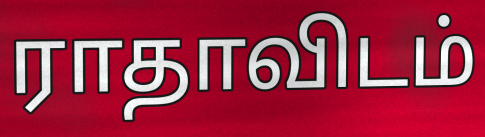
ராதாவிடம்